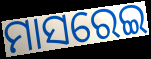
ମାସରେଇ